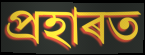
প্ৰহাৰত